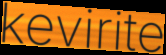
kevirite